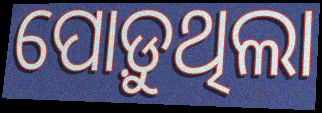
ପୋଡ଼ୁଥିଲା